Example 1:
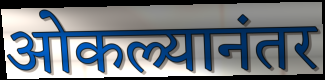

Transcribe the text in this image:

ओकल्यानंतर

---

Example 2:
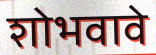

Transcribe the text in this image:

शोभवावे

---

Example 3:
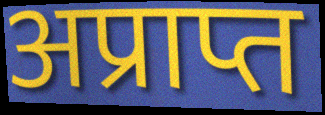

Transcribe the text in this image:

अप्राप्त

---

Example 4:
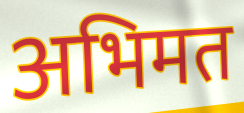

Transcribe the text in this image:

अभिमत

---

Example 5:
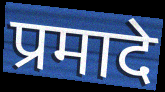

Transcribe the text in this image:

प्रमादे